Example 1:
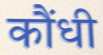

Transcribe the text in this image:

कौंधी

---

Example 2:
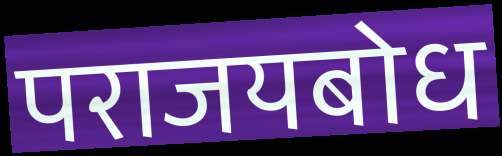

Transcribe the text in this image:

पराजयबोध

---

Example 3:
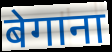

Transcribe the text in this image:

बेगाना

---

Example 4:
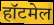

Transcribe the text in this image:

हॉटमेल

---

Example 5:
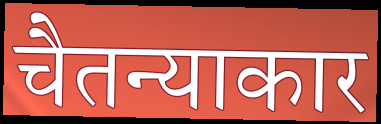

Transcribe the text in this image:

चैतन्याकार